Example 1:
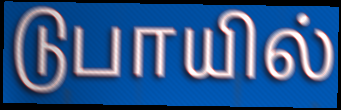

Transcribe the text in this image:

டுபாயில்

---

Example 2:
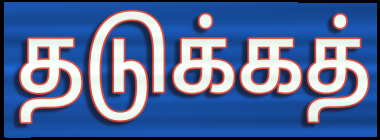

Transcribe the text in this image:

தடுக்கத்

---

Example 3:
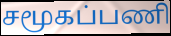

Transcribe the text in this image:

சமூகப்பணி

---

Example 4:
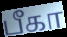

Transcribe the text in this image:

பீகா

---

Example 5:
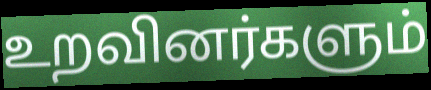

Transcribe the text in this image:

உறவினர்களும்